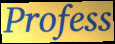
Profess